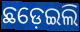
ଛଡ଼େଇଲି